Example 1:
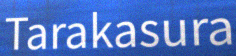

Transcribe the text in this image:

Tarakasura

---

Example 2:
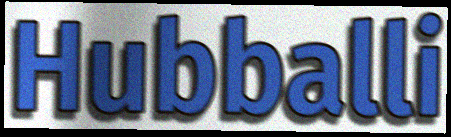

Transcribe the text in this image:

Hubballi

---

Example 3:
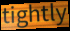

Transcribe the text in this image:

tightly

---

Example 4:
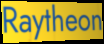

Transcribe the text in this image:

Raytheon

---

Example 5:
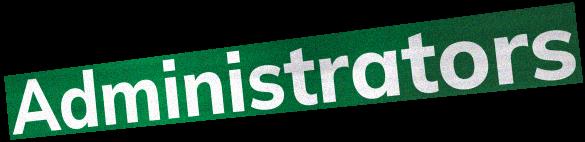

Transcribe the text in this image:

Administrators